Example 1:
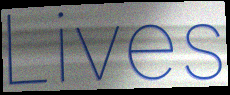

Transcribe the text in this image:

Lives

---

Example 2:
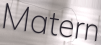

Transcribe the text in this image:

Matern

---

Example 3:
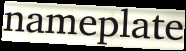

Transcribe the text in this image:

nameplate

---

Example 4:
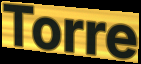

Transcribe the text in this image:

Torre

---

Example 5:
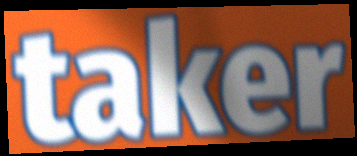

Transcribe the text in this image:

taker